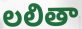
లలితా